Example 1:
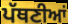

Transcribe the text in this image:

ਪੱਥਣੀਆਂ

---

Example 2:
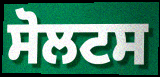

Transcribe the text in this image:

ਸੋਲਟਸ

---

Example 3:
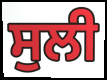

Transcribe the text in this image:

ਸੁਲੀ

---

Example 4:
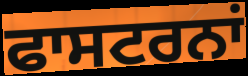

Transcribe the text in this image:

ਫਾਸਟਰਨਾਂ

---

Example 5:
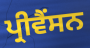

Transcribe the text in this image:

ਪ੍ਰੀਵੈਂਸਨ